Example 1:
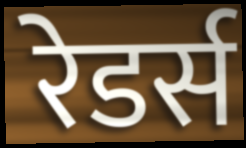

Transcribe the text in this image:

रेडर्स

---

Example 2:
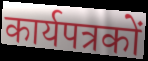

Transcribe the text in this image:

कार्यपत्रकों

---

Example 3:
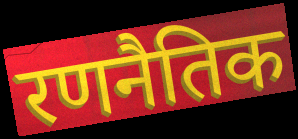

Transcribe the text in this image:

रणनैतिक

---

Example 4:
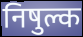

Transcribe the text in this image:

निषुल्क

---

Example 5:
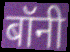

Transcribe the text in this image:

बॉनी